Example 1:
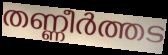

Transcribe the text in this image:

തണ്ണീർത്തട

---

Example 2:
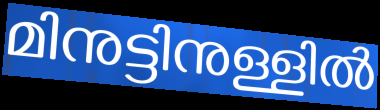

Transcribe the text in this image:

മിനുട്ടിനുള്ളിൽ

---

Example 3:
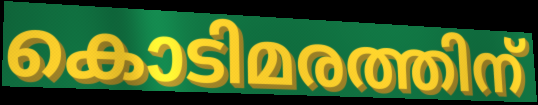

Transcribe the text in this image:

കൊടിമരത്തിന്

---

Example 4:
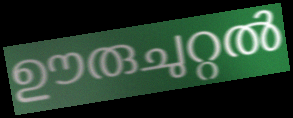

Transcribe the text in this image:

ഊരുചുറ്റൽ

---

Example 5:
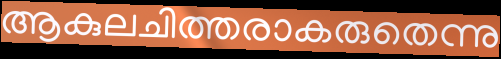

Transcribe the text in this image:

ആകുലചിത്തരാകരുതെന്നു